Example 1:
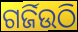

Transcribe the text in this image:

ଗର୍ଜିଉଠି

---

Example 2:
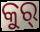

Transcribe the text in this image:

କୁର୍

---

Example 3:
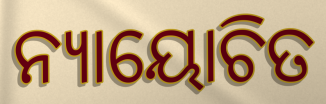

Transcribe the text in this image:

ନ୍ୟାୟୋଚିତ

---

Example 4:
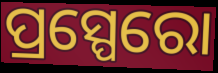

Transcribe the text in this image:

ପ୍ରସ୍ପେରୋ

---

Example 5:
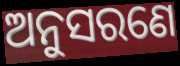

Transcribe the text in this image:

ଅନୁସରଣେ